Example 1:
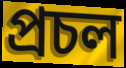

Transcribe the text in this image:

প্রচল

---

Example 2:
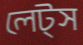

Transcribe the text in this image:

লেট্‌স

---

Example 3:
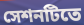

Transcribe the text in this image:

সেশনটিতে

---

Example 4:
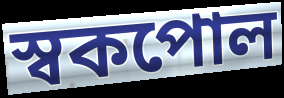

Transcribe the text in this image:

স্বকপোল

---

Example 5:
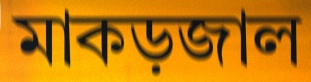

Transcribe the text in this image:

মাকড়জাল